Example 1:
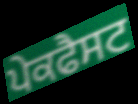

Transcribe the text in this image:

ਪੇਕਫੈਸਟ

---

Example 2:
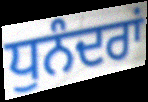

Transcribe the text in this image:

ਧੁਨੰਦਰਾਂ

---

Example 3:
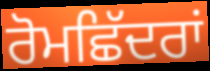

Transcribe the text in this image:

ਰੋਮਛਿੱਦਰਾਂ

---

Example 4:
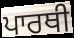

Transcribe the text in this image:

ਪਾਰਥੀ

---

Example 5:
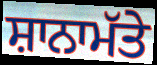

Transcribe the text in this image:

ਸ਼ਾਨਾਮੱਤੇ